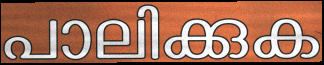
പാലിക്കുക